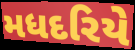
મધદરિયે